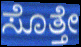
ಸೊತ್ತೇ